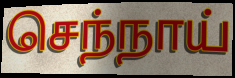
செந்நாய்